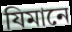
যিমানে